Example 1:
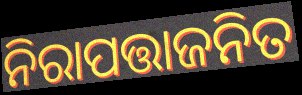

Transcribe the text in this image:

ନିରାପତ୍ତାଜନିତ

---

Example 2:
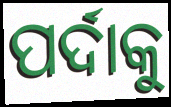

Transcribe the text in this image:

ପର୍ଦାକୁ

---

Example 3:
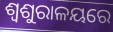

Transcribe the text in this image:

ଶ୍ୱଶୁରାଳୟରେ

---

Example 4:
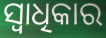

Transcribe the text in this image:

ସ୍ଵାଧିକାର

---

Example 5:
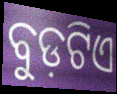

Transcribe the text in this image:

ବୁଡ଼ଟିଏ